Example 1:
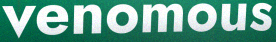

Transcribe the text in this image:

venomous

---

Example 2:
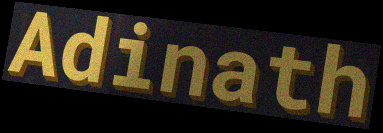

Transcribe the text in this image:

Adinath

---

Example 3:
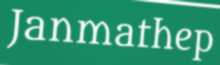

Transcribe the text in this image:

Janmathep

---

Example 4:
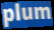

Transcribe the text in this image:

plum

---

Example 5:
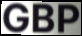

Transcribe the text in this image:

GBP